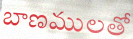
బాణములతో